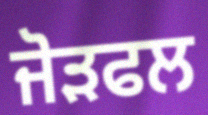
ਜੋੜਫਲ